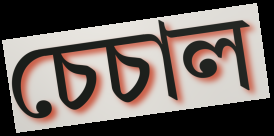
চেচাল